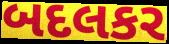
બદલકર